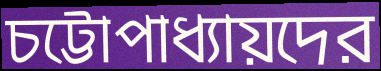
চট্টোপাধ্যায়দের